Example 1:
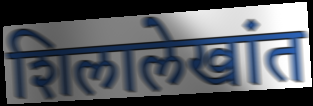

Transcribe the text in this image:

शिलालेखांत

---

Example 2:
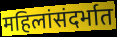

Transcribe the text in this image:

महिलांसंदर्भात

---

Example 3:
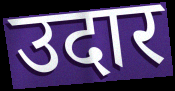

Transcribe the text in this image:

उदार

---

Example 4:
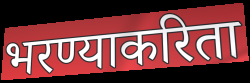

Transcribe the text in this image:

भरण्याकरिता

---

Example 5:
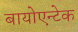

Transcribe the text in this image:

बायोएन्टेक